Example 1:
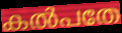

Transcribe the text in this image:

കൽപതേ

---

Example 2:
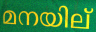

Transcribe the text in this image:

മനയില്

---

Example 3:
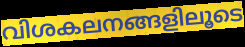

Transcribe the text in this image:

വിശകലനങ്ങളിലൂടെ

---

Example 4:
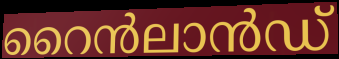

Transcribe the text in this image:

റൈൻലാൻഡ്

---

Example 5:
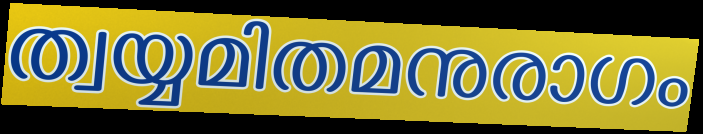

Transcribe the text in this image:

ത്വയ്യമിതമനുരാഗം